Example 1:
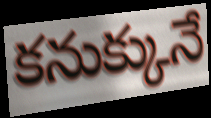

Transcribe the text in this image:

కనుక్కునే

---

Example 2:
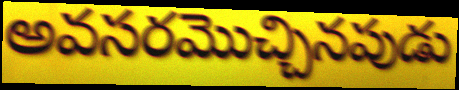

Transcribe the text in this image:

అవసరమొచ్చినపుడు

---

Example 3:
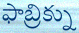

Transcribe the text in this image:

ఫాబ్రిక్ను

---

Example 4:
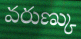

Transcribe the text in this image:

వరుణ్కు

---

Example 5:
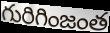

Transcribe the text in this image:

గురిగింజంత